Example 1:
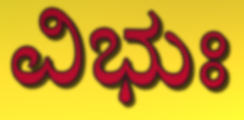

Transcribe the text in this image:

ವಿಭುಃ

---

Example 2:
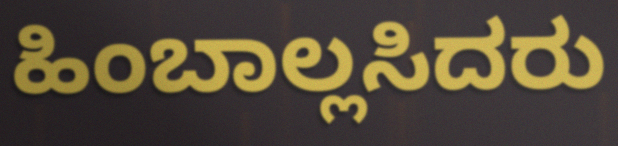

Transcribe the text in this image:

ಹಿಂಬಾಲ್ಲಸಿದರು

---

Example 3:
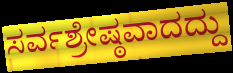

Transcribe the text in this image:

ಸರ್ವಶ್ರೇಷ್ಠವಾದದ್ದು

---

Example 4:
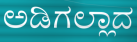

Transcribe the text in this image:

ಅಡಿಗಲ್ಲಾದ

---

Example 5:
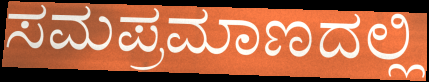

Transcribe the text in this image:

ಸಮಪ್ರಮಾಣದಲ್ಲಿ